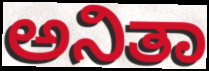
ಅನಿತಾ